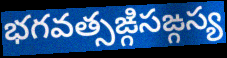
భగవత్సఙ్గిసఙ్గస్య